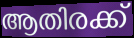
ആതിരക്ക്